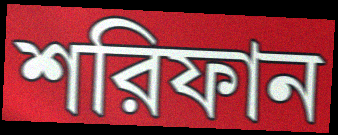
শরিফান